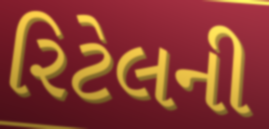
રિટેલની